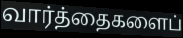
வார்த்தைகளைப்